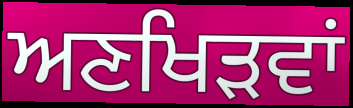
ਅਣਖਿੜਵਾਂ